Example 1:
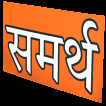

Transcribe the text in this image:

समर्थ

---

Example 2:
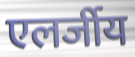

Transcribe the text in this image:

एलर्जीय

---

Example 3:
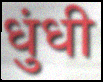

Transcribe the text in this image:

धुंधी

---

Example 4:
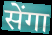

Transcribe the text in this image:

सेंगा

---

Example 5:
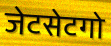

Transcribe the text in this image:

जेटसेटगो